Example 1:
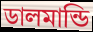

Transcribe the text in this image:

ডালমান্ডি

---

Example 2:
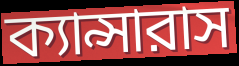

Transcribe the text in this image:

ক্যান্সারাস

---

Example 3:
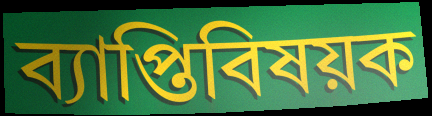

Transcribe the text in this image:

ব্যাপ্তিবিষয়ক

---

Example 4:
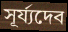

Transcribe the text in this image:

সূর্য্যদেব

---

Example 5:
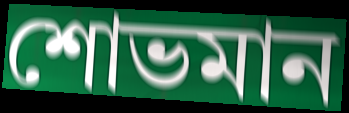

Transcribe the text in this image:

শোভমান